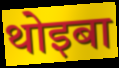
थोइबा